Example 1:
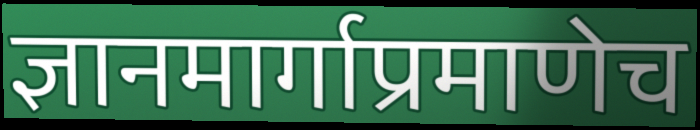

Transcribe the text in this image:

ज्ञानमार्गाप्रमाणेच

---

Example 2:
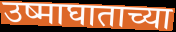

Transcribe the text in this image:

उष्माघाताच्या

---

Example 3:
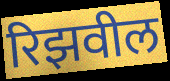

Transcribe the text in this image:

रिझवील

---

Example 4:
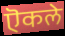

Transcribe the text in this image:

ऎकले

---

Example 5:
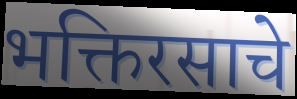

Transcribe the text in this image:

भक्तिरसाचे